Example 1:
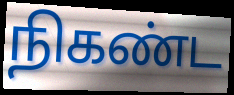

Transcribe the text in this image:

நிகண்ட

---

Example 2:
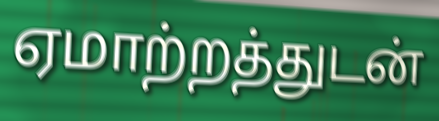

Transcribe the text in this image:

ஏமாற்றத்துடன்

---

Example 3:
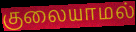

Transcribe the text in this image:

குலையாமல்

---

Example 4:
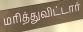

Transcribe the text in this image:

மரித்துவிட்டார்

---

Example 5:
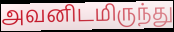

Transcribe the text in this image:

அவனிடமிருந்து